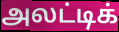
அலட்டிக்